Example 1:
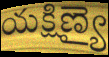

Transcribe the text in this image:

యక్షిణ్యై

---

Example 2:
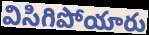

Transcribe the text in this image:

విసిగిపోయారు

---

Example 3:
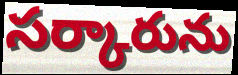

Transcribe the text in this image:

సర్కారును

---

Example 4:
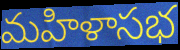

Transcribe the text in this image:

మహిళాసభ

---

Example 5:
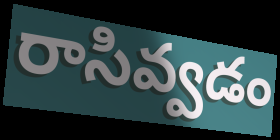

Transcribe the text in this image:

రాసివ్వడం